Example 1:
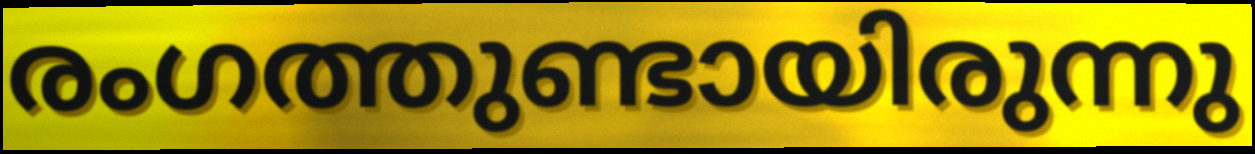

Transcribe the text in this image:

രംഗത്തുണ്ടായിരുന്നു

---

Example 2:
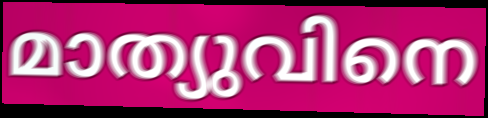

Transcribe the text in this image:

മാത്യുവിനെ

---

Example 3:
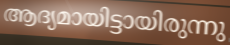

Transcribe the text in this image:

ആദ്യമായിട്ടായിരുന്നു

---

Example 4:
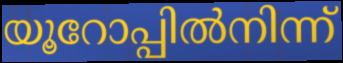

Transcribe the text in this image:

യൂറോപ്പിൽനിന്ന്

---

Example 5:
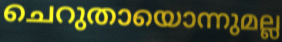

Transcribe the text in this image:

ചെറുതായൊന്നുമല്ല